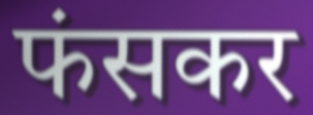
फंसकर